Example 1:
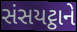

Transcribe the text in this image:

સંસયટ્ઠાને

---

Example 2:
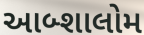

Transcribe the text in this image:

આબ્શાલોમ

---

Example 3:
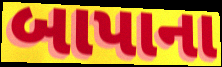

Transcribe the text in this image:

બાપાના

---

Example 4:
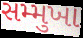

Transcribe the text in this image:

સમ્મુખા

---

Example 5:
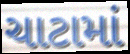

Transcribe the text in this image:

ચાટામાં